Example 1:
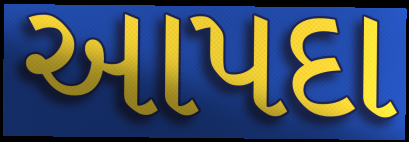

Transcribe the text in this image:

આપદા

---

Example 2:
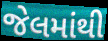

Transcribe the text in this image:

જેલમાંથી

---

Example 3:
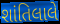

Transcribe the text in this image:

શાંતિલાલે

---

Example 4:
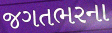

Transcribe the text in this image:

જગતભરના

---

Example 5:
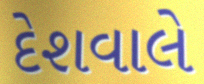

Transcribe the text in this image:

દેશવાલે